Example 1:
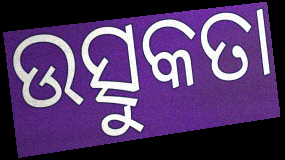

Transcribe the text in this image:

ଉତ୍ସୁକତା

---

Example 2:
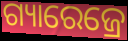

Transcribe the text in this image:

ଗ୍ୟାରେଜ୍ରେ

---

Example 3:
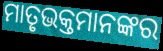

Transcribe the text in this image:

ମାତୃଭକ୍ତମାନଙ୍କର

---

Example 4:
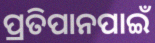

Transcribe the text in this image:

ପ୍ରତିପାନପାଇଁ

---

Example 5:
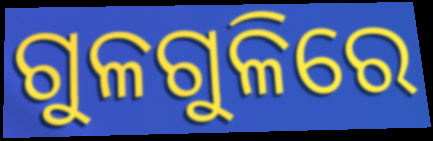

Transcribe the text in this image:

ଗୁଳଗୁଳିରେ